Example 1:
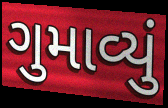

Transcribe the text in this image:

ગુમાવ્યું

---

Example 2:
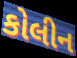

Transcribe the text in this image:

કોલીન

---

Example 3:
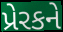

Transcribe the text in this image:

પ્રેરકને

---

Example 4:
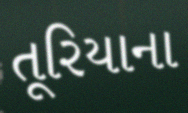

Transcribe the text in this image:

તૂરિયાના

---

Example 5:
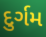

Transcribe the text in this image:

દુર્ગમ